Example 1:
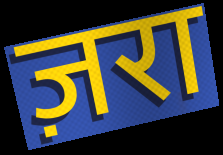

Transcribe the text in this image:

ज़रा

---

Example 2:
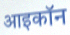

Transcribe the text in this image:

आइकॉन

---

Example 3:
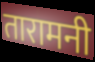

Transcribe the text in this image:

तारामनी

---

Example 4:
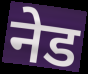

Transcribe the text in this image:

नेड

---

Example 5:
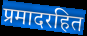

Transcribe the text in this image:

प्रमादरहित